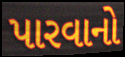
પારવાનો